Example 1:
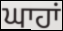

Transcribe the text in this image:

ਘਾਹਾਂ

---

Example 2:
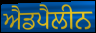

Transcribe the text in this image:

ਐਡਪੈਲੀਨ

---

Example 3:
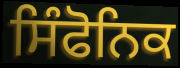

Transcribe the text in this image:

ਸਿੰਫੋਨਿਕ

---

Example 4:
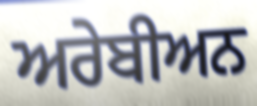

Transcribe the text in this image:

ਅਰੇਬੀਅਨ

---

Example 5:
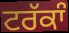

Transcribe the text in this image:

ਟਰੱਕਾੰ